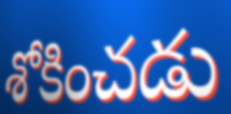
శోకించడు